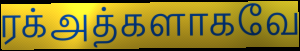
ரக்அத்களாகவே